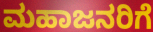
ಮಹಾಜನರಿಗೆ